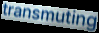
transmuting